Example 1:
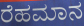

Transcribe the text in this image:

ರೆಹಮಾನ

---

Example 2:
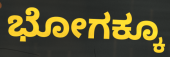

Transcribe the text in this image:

ಭೋಗಕ್ಕೂ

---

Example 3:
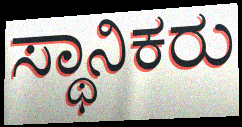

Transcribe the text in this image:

ಸ್ಥಾನಿಕರು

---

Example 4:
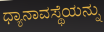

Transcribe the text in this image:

ಧ್ಯಾನಾವಸ್ಥೆಯನ್ನು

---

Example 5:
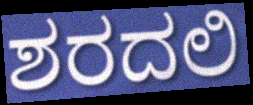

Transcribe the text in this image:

ಶರದಲಿ